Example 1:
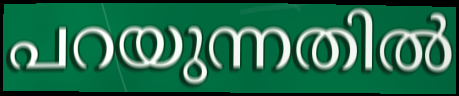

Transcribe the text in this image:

പറയുന്നതിൽ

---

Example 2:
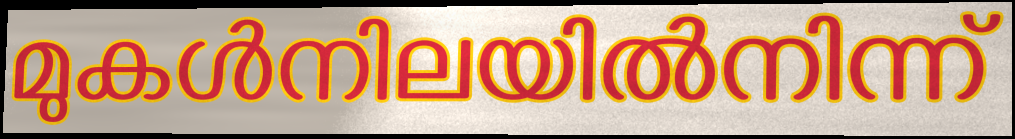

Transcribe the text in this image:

മുകൾനിലയിൽനിന്ന്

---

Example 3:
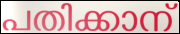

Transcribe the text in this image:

പതിക്കാന്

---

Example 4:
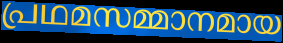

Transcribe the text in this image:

പ്രഥമസമ്മാനമായ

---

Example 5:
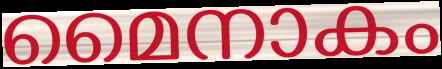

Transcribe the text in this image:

മൈനാകം